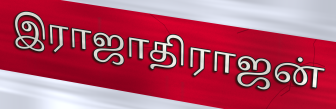
இராஜாதிராஜன்